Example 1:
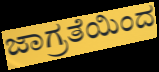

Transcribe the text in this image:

ಜಾಗ್ರತೆಯಿಂದ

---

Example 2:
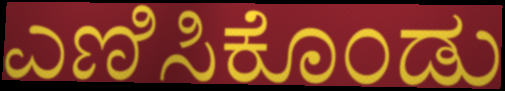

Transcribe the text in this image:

ಎಣಿಸಿಕೊಂಡು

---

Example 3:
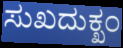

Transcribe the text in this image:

ಸುಖದುಕ್ಖಂ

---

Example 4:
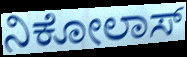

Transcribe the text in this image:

ನಿಕೋಲಾಸ್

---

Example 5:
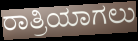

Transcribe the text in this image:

ರಾತ್ರಿಯಾಗಲು